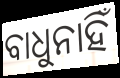
ବାଧୁନାହିଁ